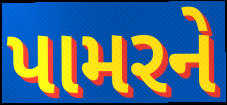
પામરને